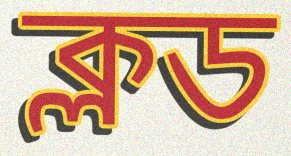
ক্লড